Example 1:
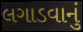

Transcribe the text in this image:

લગાડવાનું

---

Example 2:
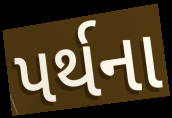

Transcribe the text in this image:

પર્થના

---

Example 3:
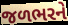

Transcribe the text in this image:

જળભરને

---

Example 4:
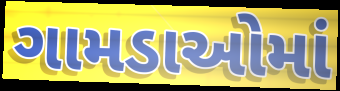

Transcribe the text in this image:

ગામડાઓમાં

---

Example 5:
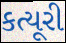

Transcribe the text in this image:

કત્યૂરી